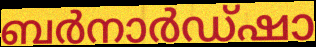
ബർനാർഡ്ഷാ